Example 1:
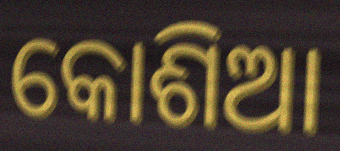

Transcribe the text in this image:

କୋଶିଆ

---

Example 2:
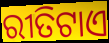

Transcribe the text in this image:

ରୀତିଟାଏ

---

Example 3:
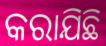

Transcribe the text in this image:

କରାଯିଛି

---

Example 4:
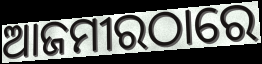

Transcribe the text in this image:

ଆଜମୀରଠାରେ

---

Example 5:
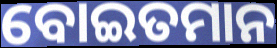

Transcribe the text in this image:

ବୋଇତମାନ